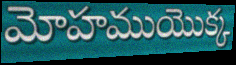
మోహముయొక్క